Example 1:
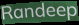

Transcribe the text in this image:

Randeep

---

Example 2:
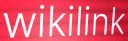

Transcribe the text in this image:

wikilink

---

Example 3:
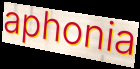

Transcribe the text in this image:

aphonia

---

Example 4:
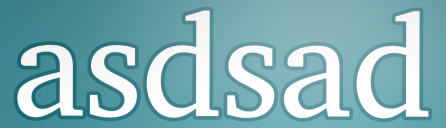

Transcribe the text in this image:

asdsad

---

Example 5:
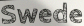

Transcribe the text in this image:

Swede